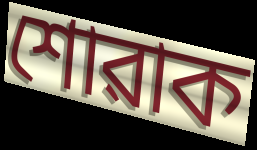
শোৱাক